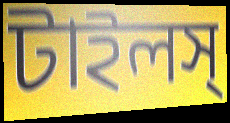
টাইলস্